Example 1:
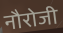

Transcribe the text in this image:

नौरोजी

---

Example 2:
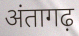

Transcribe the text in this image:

अंतागढ़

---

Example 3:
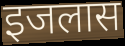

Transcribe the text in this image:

इजलास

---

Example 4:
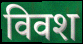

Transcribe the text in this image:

विवश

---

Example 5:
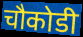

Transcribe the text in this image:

चौकोडी